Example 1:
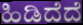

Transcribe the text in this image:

ಹಿಡಿದೆದೆ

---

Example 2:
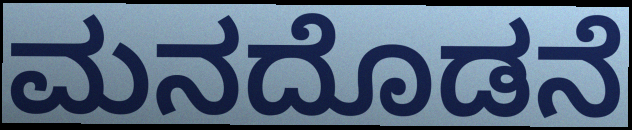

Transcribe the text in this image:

ಮನದೊಡನೆ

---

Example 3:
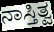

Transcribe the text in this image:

ನಾಸ್ತಿತ್ವ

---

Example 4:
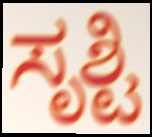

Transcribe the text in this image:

ಸೃಶ್ಟಿ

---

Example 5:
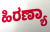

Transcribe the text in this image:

ಹಿರಣ್ಯಾ